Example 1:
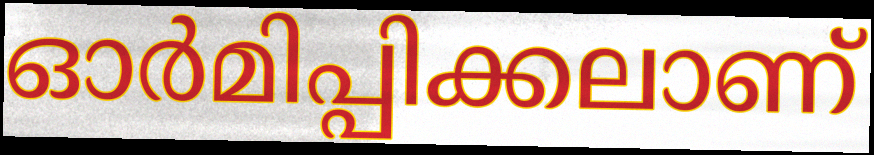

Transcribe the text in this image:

ഓർമിപ്പിക്കലാണ്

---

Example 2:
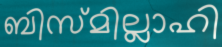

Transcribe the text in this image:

ബിസ്മില്ലാഹി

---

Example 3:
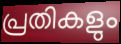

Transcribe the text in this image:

പ്രതികളും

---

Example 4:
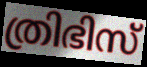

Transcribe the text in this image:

ത്രിഭിസ്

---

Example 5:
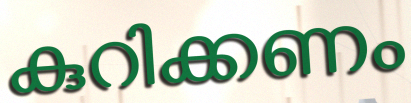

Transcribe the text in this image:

കുറിക്കണം